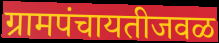
ग्रामपंचायतीजवळ